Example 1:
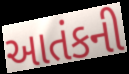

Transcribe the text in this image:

આતંકની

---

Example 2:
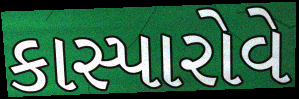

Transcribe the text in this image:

કાસ્પારોવે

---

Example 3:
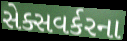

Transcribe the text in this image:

સેક્સવર્કરના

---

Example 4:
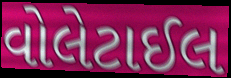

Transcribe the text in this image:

વોલેટાઈલ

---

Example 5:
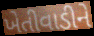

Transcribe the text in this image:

ખેતીવાડીને